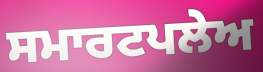
ਸਮਾਰਟਪਲੇਅ